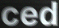
ced